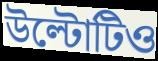
উল্টোটিও